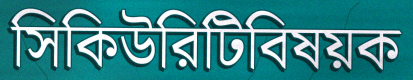
সিকিউরিটিবিষয়ক